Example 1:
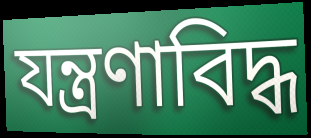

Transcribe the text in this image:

যন্ত্রণাবিদ্ধ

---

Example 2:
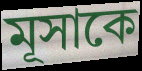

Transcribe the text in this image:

মূসাকে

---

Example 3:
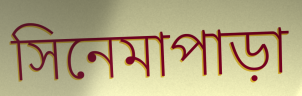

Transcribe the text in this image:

সিনেমাপাড়া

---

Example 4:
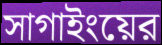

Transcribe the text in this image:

সাগাইংয়ের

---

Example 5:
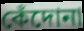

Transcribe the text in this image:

কেঁদোনা